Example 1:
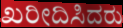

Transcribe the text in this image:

ಖರೀದಿಸಿದರು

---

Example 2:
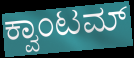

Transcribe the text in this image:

ಕ್ವಾಂಟಮ್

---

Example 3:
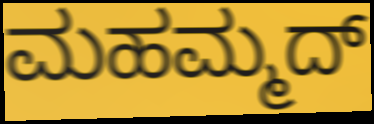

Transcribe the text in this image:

ಮಹಮ್ಮದ್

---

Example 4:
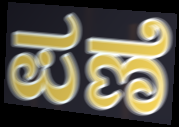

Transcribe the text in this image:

ಪಣೆ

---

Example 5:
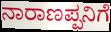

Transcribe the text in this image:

ನಾರಾಣಪ್ಪನಿಗೆ